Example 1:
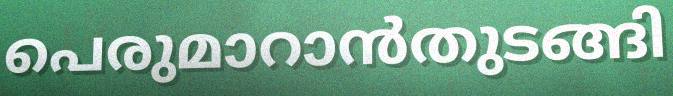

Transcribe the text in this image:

പെരുമാറാൻതുടങ്ങി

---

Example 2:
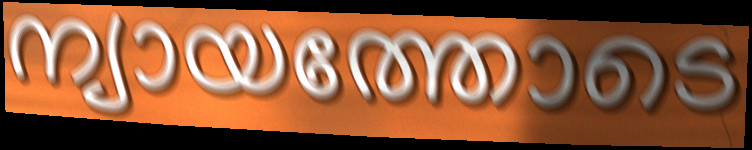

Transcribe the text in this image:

ന്യായത്തോടെ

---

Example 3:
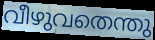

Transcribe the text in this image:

വീഴുവതെന്തു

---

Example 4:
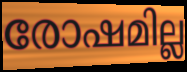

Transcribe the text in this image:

രോഷമില്ല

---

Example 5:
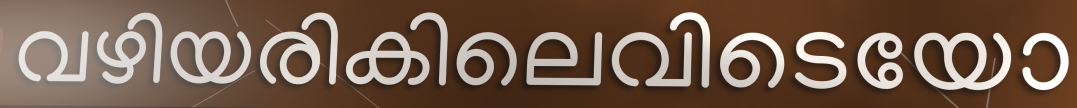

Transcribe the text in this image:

വഴിയരികിലെവിടെയോ